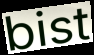
bist